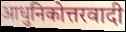
आधुनिकोत्तरवादी